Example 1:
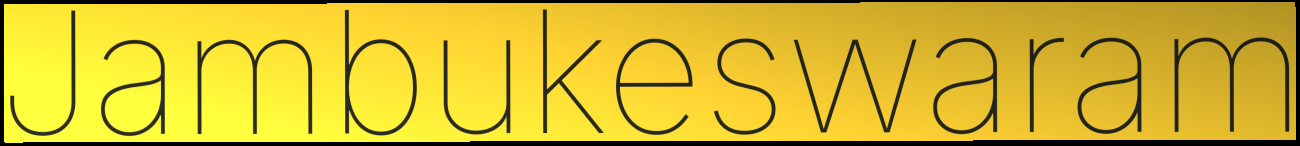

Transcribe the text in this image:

Jambukeswaram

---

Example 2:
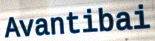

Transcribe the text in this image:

Avantibai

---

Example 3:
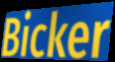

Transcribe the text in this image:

Bicker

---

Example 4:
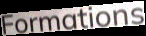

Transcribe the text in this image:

Formations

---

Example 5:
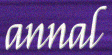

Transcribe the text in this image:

annal